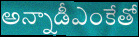
అన్నాడీఎంకేతో